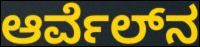
ಆರ್ವೆಲ್‍ನ